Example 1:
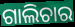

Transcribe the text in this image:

ଗାଲିଚାର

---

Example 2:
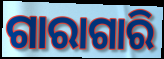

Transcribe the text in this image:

ଗାରାଗାରି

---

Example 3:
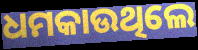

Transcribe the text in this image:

ଧମକାଉଥିଲେ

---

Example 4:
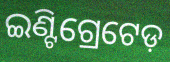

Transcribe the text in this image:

ଇଣ୍ଟିଗ୍ରେଟେଡ଼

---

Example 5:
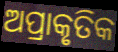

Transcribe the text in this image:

ଅପ୍ରାକୃତିକ